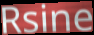
Rsine